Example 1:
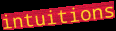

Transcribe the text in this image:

intuitions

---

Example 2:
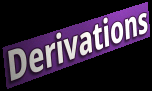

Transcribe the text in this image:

Derivations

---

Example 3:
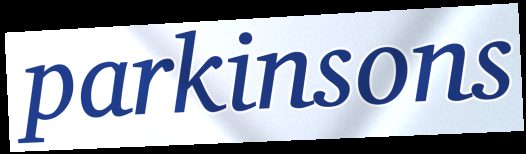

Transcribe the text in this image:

parkinsons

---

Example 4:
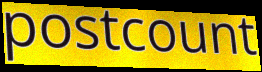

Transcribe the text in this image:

postcount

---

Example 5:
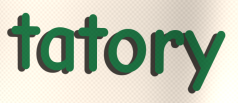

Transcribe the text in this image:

tatory